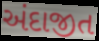
અંદાજીત